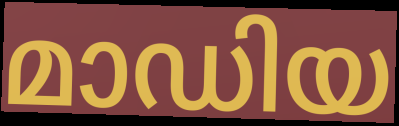
മാഡിയ